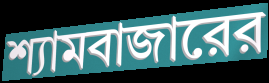
শ্যামবাজারের